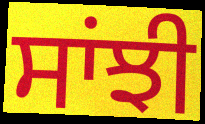
ਸਾਂਝੀ